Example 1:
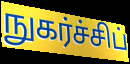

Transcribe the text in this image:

நுகர்ச்சிப்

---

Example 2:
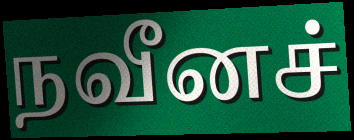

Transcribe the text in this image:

நவீனச்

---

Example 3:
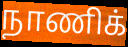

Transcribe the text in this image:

நாணிக்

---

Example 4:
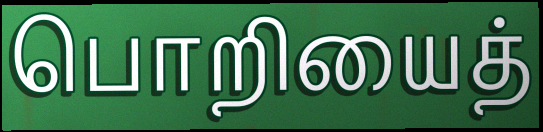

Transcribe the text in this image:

பொறியைத்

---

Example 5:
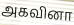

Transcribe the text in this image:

அகவினா